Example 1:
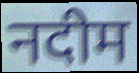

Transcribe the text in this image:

नदीम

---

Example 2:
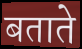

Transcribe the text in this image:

बताते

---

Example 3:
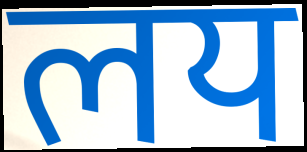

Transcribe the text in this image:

लय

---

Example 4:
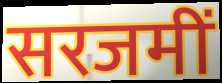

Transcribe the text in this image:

सरजमीं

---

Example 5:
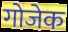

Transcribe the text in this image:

गोजेक